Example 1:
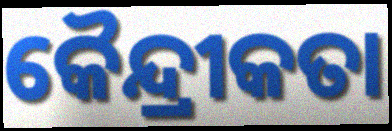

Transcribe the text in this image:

କୈନ୍ଦ୍ରୀକତା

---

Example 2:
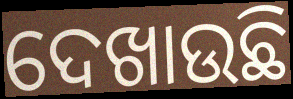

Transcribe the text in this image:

ଦେଖାଉଛି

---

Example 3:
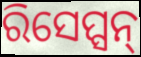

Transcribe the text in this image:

ରିସେପ୍ସନ୍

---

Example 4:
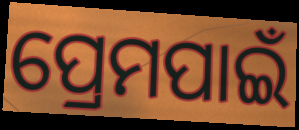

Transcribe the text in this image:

ପ୍ରେମପାଇଁ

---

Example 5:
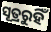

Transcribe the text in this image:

ସୂତ୍ରରୁହିଁ